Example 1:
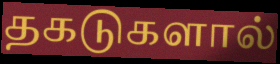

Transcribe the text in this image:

தகடுகளால்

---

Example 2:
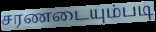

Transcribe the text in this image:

சரணடையும்படி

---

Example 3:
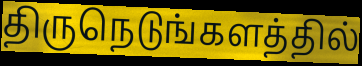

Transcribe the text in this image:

திருநெடுங்களத்தில்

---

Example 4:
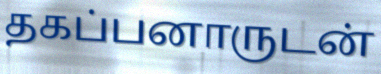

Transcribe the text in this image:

தகப்பனாருடன்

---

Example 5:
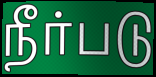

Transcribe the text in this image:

நீர்படு